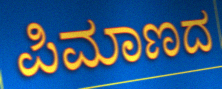
ಪಿಮಾಣದ